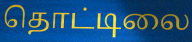
தொட்டிலை